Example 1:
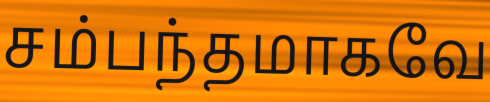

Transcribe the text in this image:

சம்பந்தமாகவே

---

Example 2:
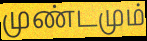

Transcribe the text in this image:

முண்டமும்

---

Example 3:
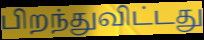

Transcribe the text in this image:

பிறந்துவிட்டது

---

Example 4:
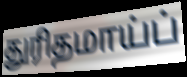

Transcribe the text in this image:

துரிதமாய்ப்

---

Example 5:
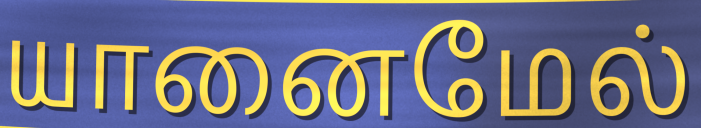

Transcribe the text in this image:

யானைமேல்